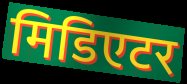
मिडिएटर